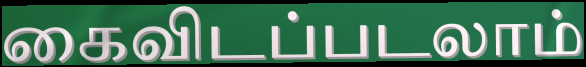
கைவிடப்படலாம்